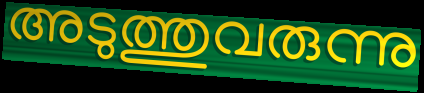
അടുത്തുവരുന്നു